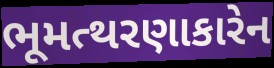
ભૂમત્થરણાકારેન